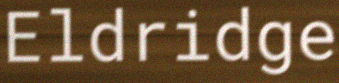
Eldridge